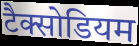
टैक्सोडियम